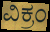
ವಿಕ್ರಂ